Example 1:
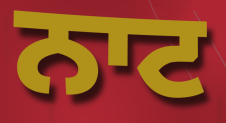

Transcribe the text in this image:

ਨਾਟ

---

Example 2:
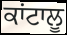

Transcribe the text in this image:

ਕਾਂਟਾਲੂ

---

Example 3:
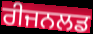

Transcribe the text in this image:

ਰੀਜਨਲਡ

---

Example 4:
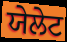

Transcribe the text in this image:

ਯੇਲੇਟ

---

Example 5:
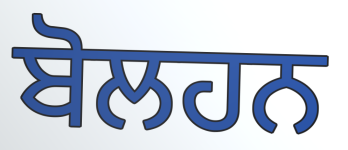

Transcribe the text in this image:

ਬੋਲਹਨ